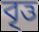
বৃত্ত